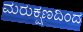
ಮರುಕ್ಷಣದಿಂದ